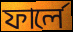
ফার্লে